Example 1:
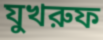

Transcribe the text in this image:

যুখরুফ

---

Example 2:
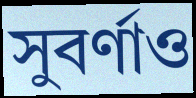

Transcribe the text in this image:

সুবর্ণাও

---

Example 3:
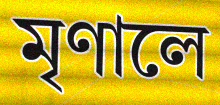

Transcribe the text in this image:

মৃণালে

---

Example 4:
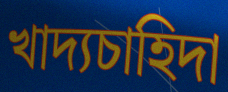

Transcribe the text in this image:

খাদ্যচাহিদা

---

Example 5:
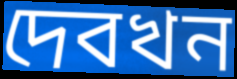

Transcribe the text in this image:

দেবখন